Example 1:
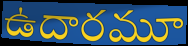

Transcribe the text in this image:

ఉదారమూ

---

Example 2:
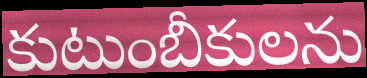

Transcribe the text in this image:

కుటుంబీకులను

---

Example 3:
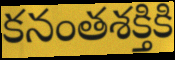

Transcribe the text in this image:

కనంతశక్తికి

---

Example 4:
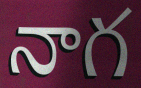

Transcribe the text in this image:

నాగ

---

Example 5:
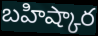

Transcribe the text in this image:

బహిష్కార